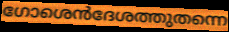
ഗോശെൻദേശത്തുതന്നെ